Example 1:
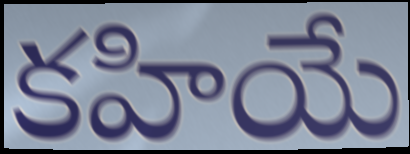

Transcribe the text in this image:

కహియే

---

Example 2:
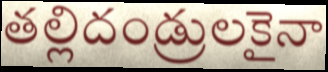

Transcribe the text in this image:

తల్లిదండ్రులకైనా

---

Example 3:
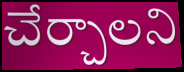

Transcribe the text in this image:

చేర్చాలని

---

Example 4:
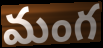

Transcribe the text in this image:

మంగ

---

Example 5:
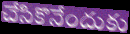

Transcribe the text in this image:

చేసికొనేందుకు